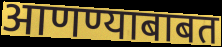
आणण्याबाबत